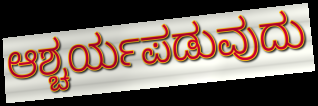
ಆಶ್ಚರ್ಯಪಡುವುದು